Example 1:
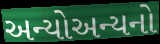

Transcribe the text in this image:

અન્યોઅન્યનો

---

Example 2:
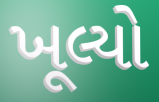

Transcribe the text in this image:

ખૂલ્યો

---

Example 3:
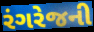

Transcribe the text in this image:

રંગરેજની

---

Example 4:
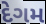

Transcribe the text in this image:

દેગમ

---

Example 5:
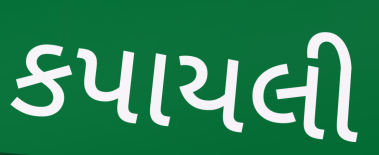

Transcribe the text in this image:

કપાયલી